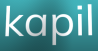
kapil